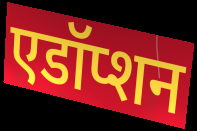
एडॉप्शन